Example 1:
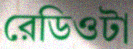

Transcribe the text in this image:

রেডিওটা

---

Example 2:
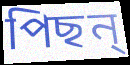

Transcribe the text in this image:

পিছন্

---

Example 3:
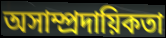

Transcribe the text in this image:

অসাম্প্রদায়িকতা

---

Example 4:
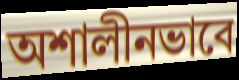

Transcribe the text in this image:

অশালীনভাবে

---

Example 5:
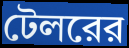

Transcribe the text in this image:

টেলরের